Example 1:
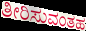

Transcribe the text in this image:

ತೀರಿಸುವಂತಹ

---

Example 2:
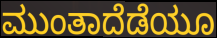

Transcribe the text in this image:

ಮುಂತಾದೆಡೆಯೂ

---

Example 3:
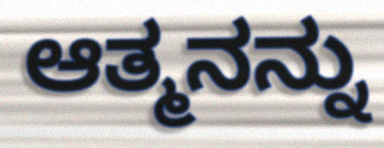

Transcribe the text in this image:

ಆತ್ಮನನ್ನು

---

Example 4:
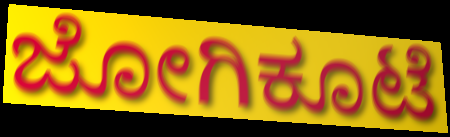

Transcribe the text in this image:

ಜೋಗಿಕೂಟೆ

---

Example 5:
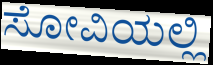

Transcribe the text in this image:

ಸೋವಿಯಲ್ಲಿ